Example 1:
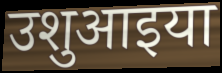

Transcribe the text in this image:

उशुआइया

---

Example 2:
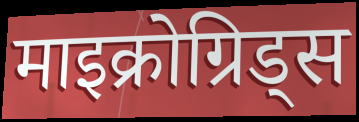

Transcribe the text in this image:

माइक्रोग्रिड्स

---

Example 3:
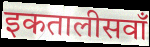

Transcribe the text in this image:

इकतालीसवाँ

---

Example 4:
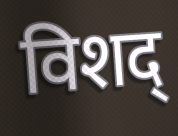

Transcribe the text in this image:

विशद्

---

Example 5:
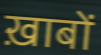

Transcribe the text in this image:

ख़ाबों